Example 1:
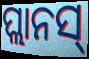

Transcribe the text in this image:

ପ୍ଲାନସ୍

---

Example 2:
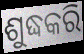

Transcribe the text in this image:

ଶୁଦ୍ଧକରି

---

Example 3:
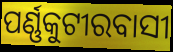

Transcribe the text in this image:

ପର୍ଣ୍ଣକୁଟୀରବାସୀ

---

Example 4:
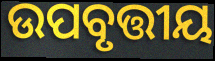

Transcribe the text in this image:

ଉପବୃତ୍ତୀୟ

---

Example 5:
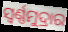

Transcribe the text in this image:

ସ୍ୱର୍ଣ୍ଣମୁଦ୍ରାର